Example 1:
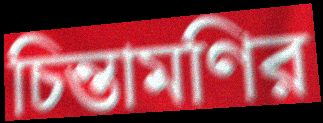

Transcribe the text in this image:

চিন্তামণির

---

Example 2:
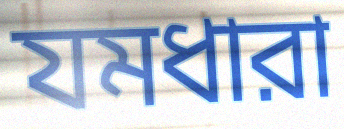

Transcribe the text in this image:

যমধারা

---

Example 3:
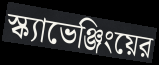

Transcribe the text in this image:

স্ক্যাভেঞ্জিংয়ের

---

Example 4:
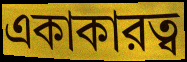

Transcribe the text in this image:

একাকারত্ব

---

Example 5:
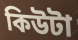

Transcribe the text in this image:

কিউটা